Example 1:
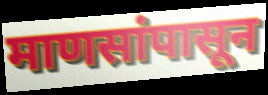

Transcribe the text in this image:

माणसांपासून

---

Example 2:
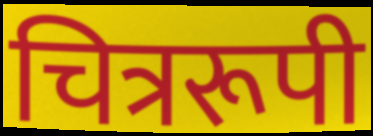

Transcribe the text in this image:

चित्ररूपी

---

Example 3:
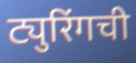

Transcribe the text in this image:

ट्युरिंगची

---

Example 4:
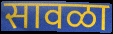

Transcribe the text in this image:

सावळा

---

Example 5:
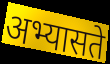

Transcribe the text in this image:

अभ्यासते